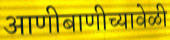
आणीबाणीच्यावेळी